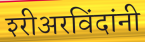
श्रीअरविंदांनी